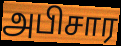
அபிசார